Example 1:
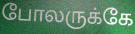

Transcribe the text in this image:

போலருக்கே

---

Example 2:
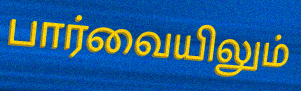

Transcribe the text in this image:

பார்வையிலும்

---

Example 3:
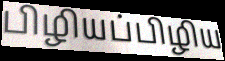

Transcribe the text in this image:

பிழியப்பிழிய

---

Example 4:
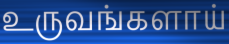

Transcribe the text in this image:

உருவங்களாய்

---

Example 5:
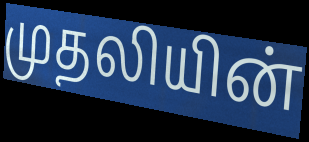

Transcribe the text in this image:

முதலியின்